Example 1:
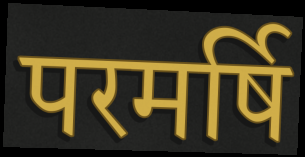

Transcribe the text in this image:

परमर्षि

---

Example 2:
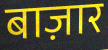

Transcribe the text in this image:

बाज़ार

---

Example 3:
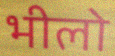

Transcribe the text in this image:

भीलो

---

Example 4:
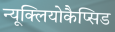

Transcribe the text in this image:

न्यूक्लियोकैप्सिड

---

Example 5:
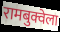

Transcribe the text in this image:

रामबुक्वेला